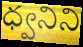
ధ్వనిని